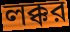
লক্কর